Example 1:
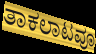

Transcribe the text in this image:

ತಾಕಲಾಟವೂ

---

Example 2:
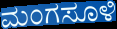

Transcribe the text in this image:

ಮಂಗಸೂಳಿ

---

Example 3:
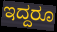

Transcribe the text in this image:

ಇದ್ದರೂ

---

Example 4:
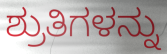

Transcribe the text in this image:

ಶ್ರುತಿಗಳನ್ನು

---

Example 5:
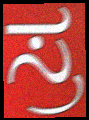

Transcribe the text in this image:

ಸ್ರ